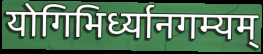
योगिभिर्ध्यानगम्यम्